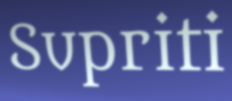
Supriti